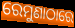
ରେମୁଣାଠାରେ